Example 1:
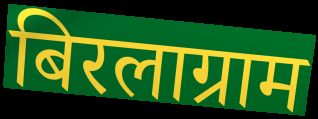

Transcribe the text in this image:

बिरलाग्राम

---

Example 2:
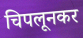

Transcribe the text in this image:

चिपलूनकर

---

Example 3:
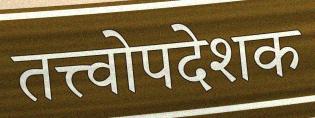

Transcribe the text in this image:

तत्त्वोपदेशक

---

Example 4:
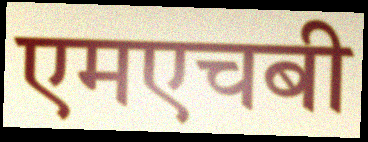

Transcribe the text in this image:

एमएचबी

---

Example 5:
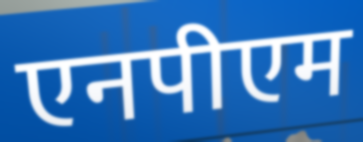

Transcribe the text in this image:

एनपीएम